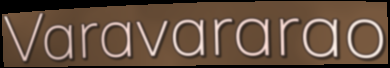
Varavararao